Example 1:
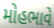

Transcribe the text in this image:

મોહભાવે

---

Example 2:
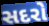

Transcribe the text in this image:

સદરો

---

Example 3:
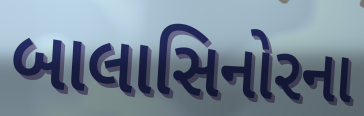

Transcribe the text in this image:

બાલાસિનોરના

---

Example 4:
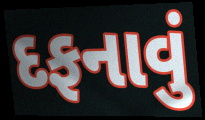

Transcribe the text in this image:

દફનાવું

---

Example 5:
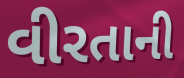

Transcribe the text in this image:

વીરતાની